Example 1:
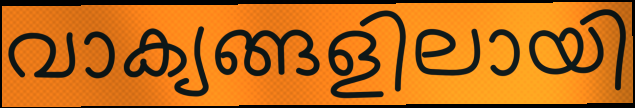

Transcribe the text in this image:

വാക്യങ്ങളിലായി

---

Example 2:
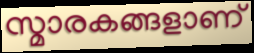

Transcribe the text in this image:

സ്മാരകങ്ങളാണ്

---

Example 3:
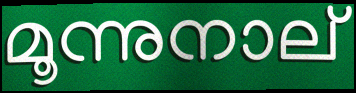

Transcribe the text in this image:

മൂന്നുനാല്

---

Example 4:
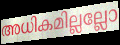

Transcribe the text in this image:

അധികമില്ലല്ലോ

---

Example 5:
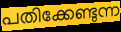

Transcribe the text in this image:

പതിക്കേണ്ടുന്ന